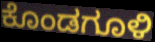
ಕೊಂಡಗೂಳಿ